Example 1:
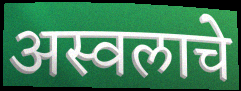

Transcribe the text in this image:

अस्वलाचे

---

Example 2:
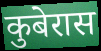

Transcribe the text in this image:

कुबेरास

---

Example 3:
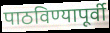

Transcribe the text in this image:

पाठविण्यापूर्वी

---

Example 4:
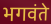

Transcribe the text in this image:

भगवंते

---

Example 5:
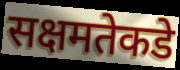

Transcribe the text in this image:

सक्षमतेकडे